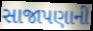
સાજાપણાની